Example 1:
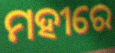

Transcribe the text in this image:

ମହୀରେ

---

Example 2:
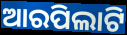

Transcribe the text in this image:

ଆରପିଲାଟି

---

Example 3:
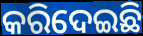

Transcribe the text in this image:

କରିଦେଇଛି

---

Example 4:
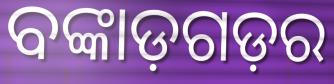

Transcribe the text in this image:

ବଙ୍କାଡ଼ଗଡ଼ର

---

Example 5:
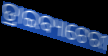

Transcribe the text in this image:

ଡ୍ରାଇବ୍ୟାଟେରୀ